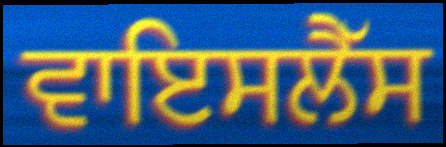
ਵਾਇਸਲੈੱਸ